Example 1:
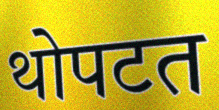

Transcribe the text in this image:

थोपटत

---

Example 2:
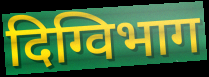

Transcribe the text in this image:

दिग्विभाग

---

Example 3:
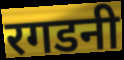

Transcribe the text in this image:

रगडनी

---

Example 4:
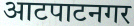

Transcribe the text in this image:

आटपाटनगर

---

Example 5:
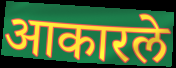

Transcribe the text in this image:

आकारले